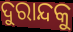
ଦୁରାନ୍ଦକୁ